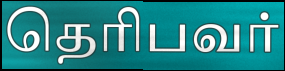
தெரிபவர்